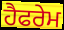
ਹੈਫਰੇਮ